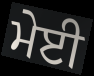
ਮੇਈ